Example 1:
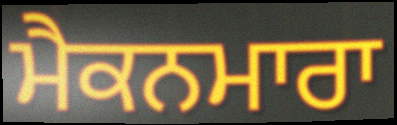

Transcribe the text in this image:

ਮੈਕਨਮਾਰਾ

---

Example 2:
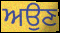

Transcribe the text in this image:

ਅਉਣ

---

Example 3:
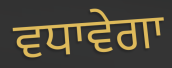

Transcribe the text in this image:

ਵਧਾਵੇਗਾ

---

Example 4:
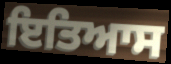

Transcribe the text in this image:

ਇਤਿਆਸ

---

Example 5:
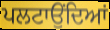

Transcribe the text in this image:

ਪਲਟਾਉਂਦਿਆਂ